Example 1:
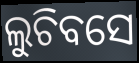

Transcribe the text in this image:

ଲୁଚିବସେ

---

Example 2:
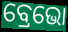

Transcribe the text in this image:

ବ୍ରେଭୋ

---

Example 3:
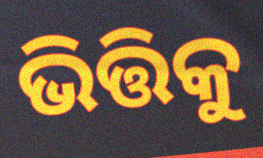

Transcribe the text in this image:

ଭିତ୍ତିକୁ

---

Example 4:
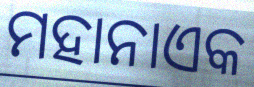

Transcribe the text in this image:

ମହାନାଏକ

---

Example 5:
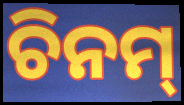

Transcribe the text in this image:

ଚିନମ୍